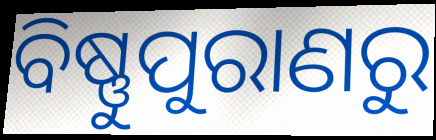
ବିଷ୍ଣୁପୁରାଣରୁ